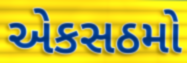
એકસઠમો